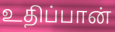
உதிப்பான்